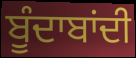
ਬੂੰਦਾਬਾਂਦੀ